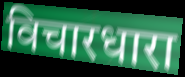
विचारधारा